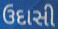
ઉદાસી